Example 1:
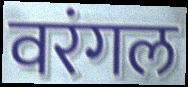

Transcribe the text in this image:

वरंगल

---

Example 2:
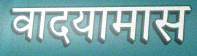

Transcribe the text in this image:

वादयामास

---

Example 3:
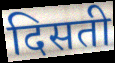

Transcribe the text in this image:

दिसती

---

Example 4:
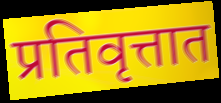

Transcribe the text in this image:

प्रतिवृत्तात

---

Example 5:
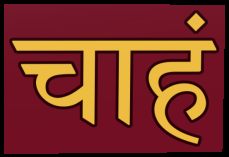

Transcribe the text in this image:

चाहं